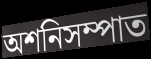
অশনিসম্পাত